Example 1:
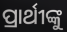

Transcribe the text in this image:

ପ୍ରାର୍ଥୀଙ୍କୁ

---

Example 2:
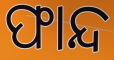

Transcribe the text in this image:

ଫାନ୍ଦ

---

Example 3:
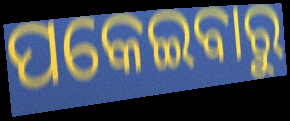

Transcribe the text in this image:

ପକେଇବାରୁ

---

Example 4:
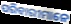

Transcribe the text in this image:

ପରିବାରୀମାନେ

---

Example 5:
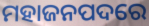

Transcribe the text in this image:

ମହାଜନପଦରେ